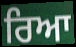
ਰਿਆ